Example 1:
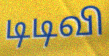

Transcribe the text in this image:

டிடிவி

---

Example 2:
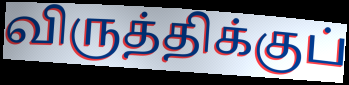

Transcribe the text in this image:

விருத்திக்குப்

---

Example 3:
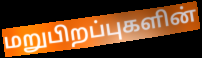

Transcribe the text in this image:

மறுபிறப்புகளின்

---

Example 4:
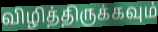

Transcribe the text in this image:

விழித்திருக்கவும்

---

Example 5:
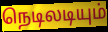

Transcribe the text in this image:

நெடிலடியும்